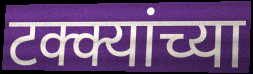
टक्क्यांच्या